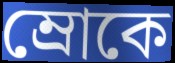
ম্রোকে